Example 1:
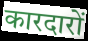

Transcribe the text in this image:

कारदारों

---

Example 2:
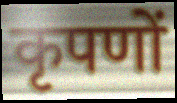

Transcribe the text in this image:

कृपणों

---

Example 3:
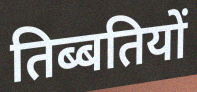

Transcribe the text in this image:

तिब्बतियों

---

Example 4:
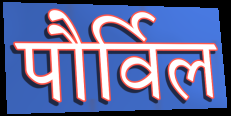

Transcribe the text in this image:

पौर्विल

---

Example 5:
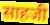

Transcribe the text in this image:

साहजी